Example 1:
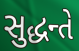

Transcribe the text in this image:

સુદ્ધન્તે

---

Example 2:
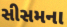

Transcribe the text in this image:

સીસમના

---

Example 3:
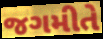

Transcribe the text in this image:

જગમીતે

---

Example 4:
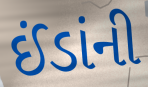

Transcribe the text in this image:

ઈંડાંની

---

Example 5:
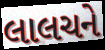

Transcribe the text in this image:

લાલચને